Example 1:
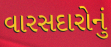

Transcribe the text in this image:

વારસદારોનું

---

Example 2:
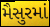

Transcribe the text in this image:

મૈસુરમાં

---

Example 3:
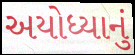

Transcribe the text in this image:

અયોધ્યાનું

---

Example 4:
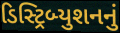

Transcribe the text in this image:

ડિસ્ટ્રિબ્યુશનનું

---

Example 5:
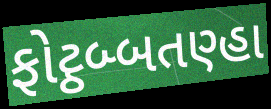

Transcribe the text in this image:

ફોટ્ઠબ્બતણ્હા